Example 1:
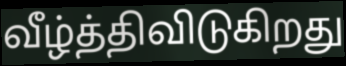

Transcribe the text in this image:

வீழ்த்திவிடுகிறது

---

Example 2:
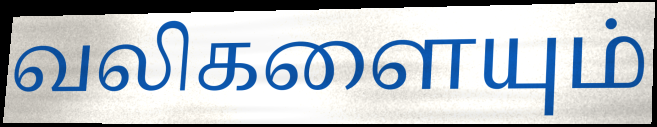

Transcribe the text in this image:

வலிகளையும்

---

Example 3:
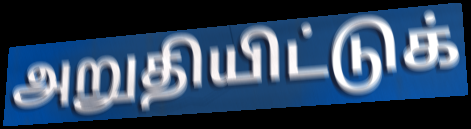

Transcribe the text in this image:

அறுதியிட்டுக்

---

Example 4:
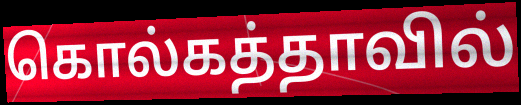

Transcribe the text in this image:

கொல்கத்தாவில்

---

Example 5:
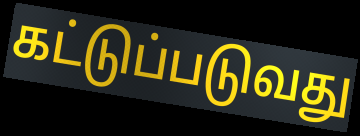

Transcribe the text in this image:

கட்டுப்படுவது